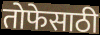
तोफेसाठी